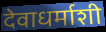
देवाधर्माशी